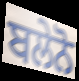
ਬਲੇਨੋ